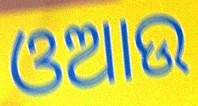
ଓଆଉ